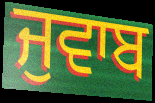
ਜੁਵਾਬ